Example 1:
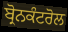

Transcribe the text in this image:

ਬ੍ਰੋਨਕੰਟਰੋਲ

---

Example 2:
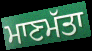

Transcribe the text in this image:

ਮਾਣਮੱਤਾ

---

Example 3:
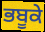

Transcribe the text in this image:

ਭਬੂਕੇ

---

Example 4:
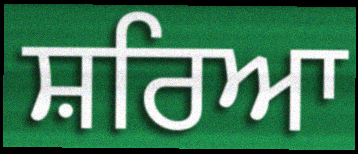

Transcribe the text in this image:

ਸ਼ਰਿਆ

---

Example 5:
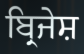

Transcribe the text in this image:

ਬ੍ਰਿਜੇਸ਼